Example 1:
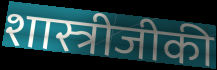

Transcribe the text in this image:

शास्त्रीजीकी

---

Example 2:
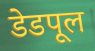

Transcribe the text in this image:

डेडपूल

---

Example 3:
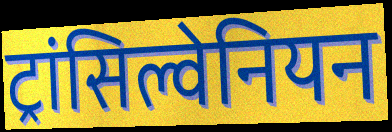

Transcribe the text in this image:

ट्रांसिल्वेनियन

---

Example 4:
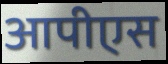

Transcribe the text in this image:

आपीएस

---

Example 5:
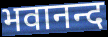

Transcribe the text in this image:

भवानन्द